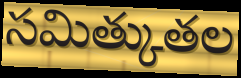
సమిత్కుతల